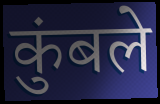
कुंबले